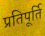
प्रतिपूर्ति